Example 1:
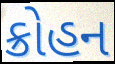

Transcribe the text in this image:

ક્રોહન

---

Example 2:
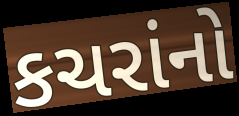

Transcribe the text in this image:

કચરાંનો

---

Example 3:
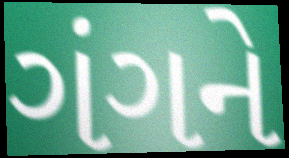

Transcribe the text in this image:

ગંગને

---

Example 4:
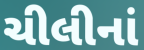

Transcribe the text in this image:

ચીલીનાં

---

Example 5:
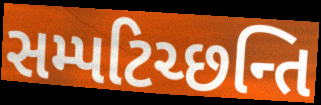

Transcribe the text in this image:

સમ્પટિચ્છન્તિ